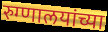
रुग्णालयांच्या